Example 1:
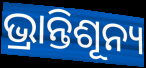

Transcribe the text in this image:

ଭ୍ରାନ୍ତିଶୂନ୍ୟ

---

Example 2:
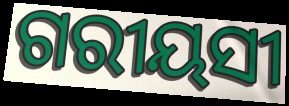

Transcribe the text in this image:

ଗରୀୟସୀ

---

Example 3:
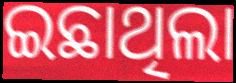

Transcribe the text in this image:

ଇଛାଥିଲା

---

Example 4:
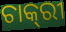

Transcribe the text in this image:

ଚାକ୍‌ରୀ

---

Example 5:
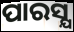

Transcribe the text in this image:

ପାରସ୍ଯ